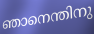
ഞാനെന്തിനു